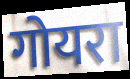
गोयरा